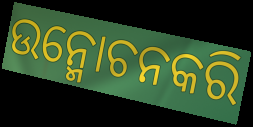
ଉନ୍ମୋଚନକରି